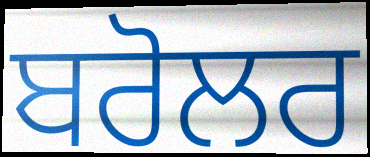
ਬਰੋਲਰ